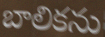
బాలికను